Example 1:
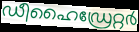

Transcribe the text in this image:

ഡീഹൈഡ്രേറ്റർ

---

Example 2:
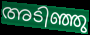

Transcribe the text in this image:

അടിഞ്ഞു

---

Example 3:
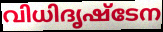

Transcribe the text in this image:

വിധിദൃഷ്ടേന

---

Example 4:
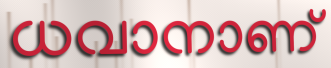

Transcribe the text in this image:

ധവാനാണ്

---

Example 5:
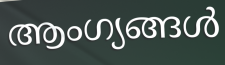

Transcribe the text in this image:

ആംഗ്യങ്ങൾ